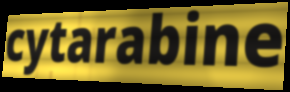
cytarabine